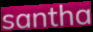
santha